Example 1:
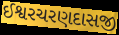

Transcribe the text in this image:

ઈશ્વરચરણદાસજી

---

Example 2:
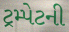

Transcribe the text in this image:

ટ્રમ્પેટની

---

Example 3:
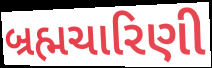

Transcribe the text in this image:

બ્રહ્મચારિણી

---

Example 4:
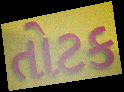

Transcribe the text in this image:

તોટક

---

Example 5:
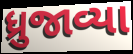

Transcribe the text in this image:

ધ્રુજાવ્યા